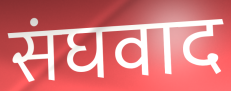
संघवाद